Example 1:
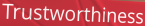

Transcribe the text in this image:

Trustworthiness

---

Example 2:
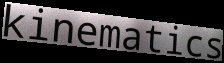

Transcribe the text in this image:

kinematics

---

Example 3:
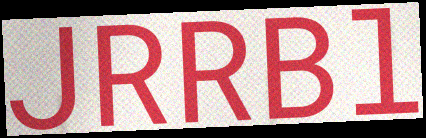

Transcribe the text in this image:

JRRBl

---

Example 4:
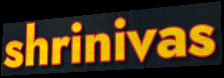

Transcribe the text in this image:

shrinivas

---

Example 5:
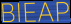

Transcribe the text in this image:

BIEAP